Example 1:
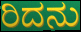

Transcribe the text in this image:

ರಿದನು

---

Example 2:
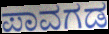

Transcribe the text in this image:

ಪಾವಗಡ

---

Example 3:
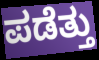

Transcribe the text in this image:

ಪಡೆತ್ತು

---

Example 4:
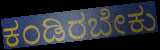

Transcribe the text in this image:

ಕಂಡಿರಬೇಕು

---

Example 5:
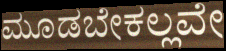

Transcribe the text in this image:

ಮೂಡಬೇಕಲ್ಲವೇ